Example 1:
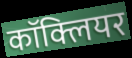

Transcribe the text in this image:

कॉक्लियर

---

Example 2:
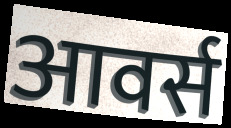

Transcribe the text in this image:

आवर्स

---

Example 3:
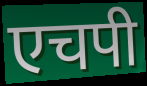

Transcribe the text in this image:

एचपी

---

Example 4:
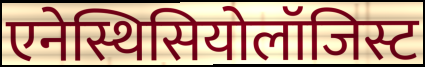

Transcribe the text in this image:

एनेस्थिसियोलॉजिस्ट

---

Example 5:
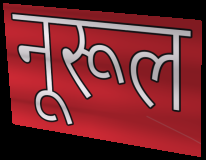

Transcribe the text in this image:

नूरूल